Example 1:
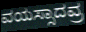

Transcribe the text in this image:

ವಯಸ್ಸಾದವ್ರ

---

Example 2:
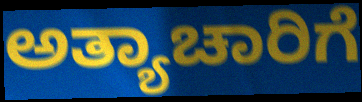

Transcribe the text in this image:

ಅತ್ಯಾಚಾರಿಗೆ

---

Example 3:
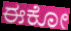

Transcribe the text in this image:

ಈಕೋ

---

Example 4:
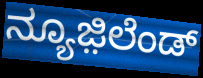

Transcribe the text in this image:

ನ್ಯೂಜ಼ಿಲೆಂಡ್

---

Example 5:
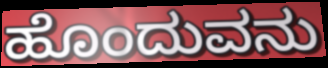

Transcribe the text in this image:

ಹೊಂದುವನು